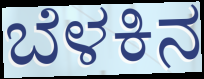
ಬೆಳಕಿನ